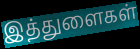
இத்துளைகள்